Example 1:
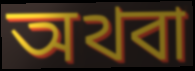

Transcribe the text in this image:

অথবা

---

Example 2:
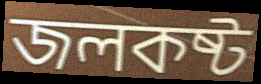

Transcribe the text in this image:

জলকষ্ট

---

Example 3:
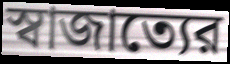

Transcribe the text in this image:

স্বাজাত্যের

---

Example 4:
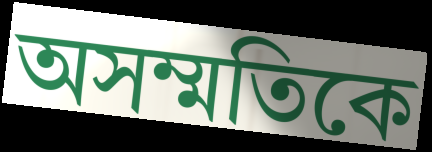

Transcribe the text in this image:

অসম্মতিকে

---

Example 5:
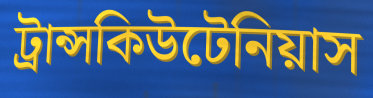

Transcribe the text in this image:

ট্রান্সকিউটেনিয়াস